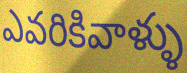
ఎవరికివాళ్ళు